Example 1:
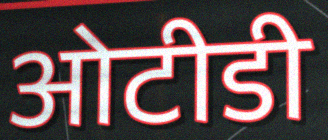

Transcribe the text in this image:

ओटीडी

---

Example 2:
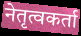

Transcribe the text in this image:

नेतृत्‍वकर्ता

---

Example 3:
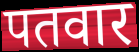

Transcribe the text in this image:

पतवार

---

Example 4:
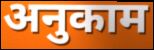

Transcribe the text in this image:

अनुकाम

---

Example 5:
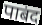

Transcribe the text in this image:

पाबंद